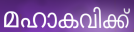
മഹാകവിക്ക്